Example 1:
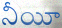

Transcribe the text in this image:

నీయీ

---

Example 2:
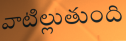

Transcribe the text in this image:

వాటిల్లుతుంది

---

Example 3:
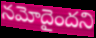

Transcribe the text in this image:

నమోదైందని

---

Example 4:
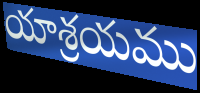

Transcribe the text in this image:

యాశ్రయము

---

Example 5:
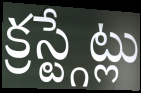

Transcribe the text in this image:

క్రస్ట్గేట్లు